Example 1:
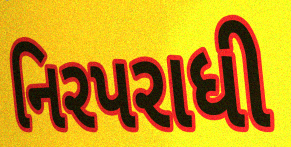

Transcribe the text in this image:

નિરપરાધી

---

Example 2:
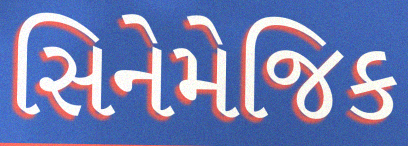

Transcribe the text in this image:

સિનેમેજિક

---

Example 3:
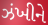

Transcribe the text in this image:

ઝંખીને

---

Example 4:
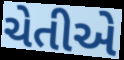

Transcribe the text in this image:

ચેતીએ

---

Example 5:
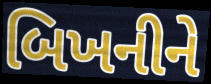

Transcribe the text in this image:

બિખનીને